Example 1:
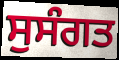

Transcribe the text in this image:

ਸੁਸੰਗਤ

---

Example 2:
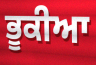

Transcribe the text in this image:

ਭੂਕੀਆ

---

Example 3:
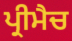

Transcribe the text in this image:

ਪ੍ਰੀਮੈਚ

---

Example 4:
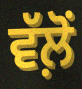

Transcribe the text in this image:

ਵੱਲ਼ੋਂ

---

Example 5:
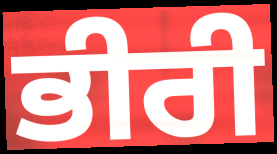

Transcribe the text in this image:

ਭੀਰੀ